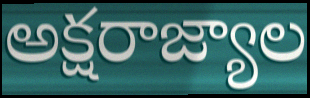
అక్షరాజ్యాల